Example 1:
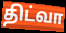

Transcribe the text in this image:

திட்வா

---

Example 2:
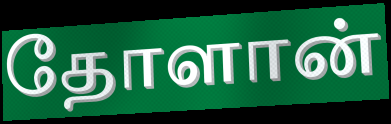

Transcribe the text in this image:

தோளான்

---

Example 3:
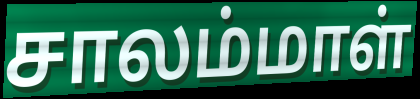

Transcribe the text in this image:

சாலம்மாள்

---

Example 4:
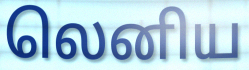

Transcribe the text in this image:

லெனிய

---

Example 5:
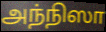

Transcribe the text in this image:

அந்நிஸா